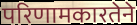
परिणामकारतेने